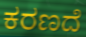
ಕರಣದೆ